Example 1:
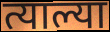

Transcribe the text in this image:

त्याल्या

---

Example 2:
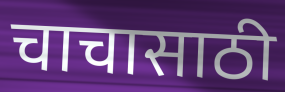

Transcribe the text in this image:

चाचासाठी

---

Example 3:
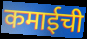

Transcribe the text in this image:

कमाईची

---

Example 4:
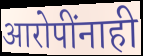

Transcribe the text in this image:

आरोपींनाही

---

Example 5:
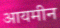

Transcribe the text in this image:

आयमीन